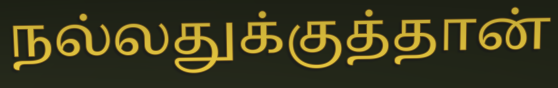
நல்லதுக்குத்தான்